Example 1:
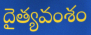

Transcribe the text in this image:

దైత్యవంశం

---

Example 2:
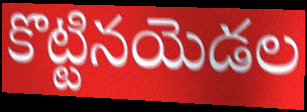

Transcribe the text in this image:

కొట్టినయెడల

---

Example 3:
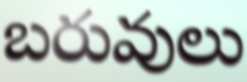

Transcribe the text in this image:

బరువులు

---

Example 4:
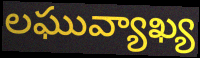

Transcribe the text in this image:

లఘువ్యాఖ్య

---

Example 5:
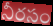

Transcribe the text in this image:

నీరసం